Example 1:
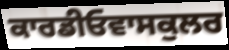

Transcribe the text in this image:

ਕਾਰਡੀਓਵਾਸਕੁਲਰ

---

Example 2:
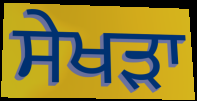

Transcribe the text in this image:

ਸੇਖੜਾ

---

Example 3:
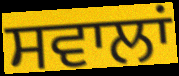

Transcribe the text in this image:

ਸਵਾਲਾਂ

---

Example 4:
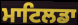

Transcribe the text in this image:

ਮਾਟਿਲਡਾ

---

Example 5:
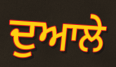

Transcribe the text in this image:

ਦੁਆਲੇ